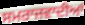
ਸਮਰਾਜਵਾਦੀਆਂ